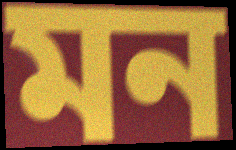
মন